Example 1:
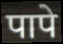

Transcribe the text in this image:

पापे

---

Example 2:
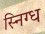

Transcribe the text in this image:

स्‍निग्ध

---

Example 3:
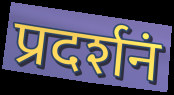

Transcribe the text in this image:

प्रदर्शनं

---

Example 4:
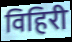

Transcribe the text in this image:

विहिरी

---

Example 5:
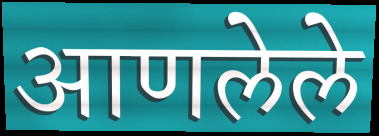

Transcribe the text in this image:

आणलेले